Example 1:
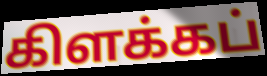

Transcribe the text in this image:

கிளக்கப்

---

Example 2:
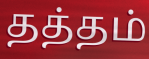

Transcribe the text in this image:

தத்தம்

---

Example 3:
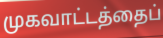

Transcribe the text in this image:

முகவாட்டத்தைப்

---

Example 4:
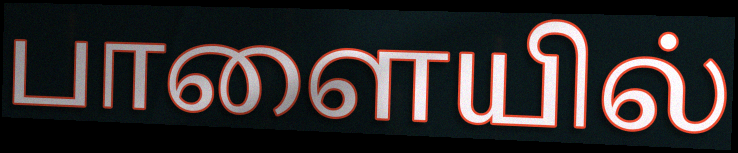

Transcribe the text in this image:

பாளையில்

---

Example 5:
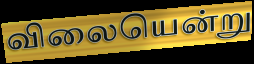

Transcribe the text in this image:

விலையென்று